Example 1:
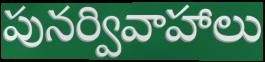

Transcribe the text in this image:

పునర్వివాహాలు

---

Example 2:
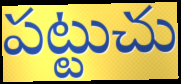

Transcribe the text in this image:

పట్టుచు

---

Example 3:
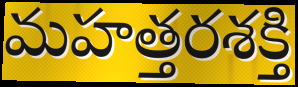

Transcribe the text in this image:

మహత్తరశక్తి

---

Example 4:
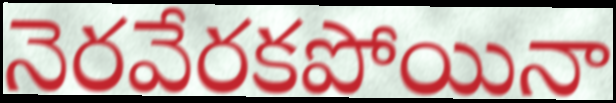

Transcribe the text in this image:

నెరవేరకపోయినా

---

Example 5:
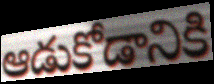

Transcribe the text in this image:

ఆడుకోడానికి